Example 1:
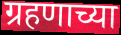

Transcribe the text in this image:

ग्रहणाच्या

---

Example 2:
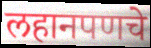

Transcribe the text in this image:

लहानपणचे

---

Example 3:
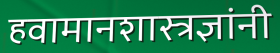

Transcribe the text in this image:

हवामानशास्त्रज्ञांनी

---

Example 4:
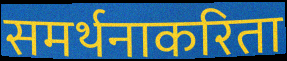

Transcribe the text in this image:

समर्थनाकरिता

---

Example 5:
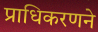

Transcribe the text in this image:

प्राधिकरणने